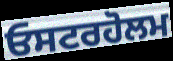
ਓਸਟਰਹੋਲਮ